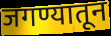
जगण्यातून